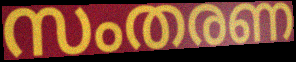
സംതരണ